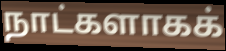
நாட்களாகக்